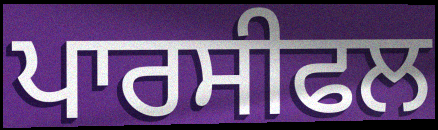
ਪਾਰਸੀਫਲ